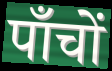
पाँचों